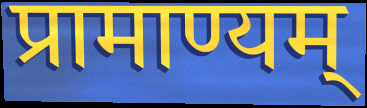
प्रामाण्यम्